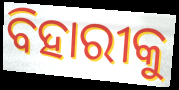
ବିହାରୀକୁ